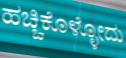
ಹಚ್ಚಿಕೊಳ್ಳೋದು